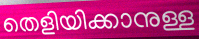
തെളിയിക്കാനുള്ള